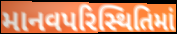
માનવપરિસ્થિતિમાં